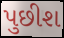
પુછીશ